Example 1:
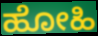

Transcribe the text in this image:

ಹೋಹಿ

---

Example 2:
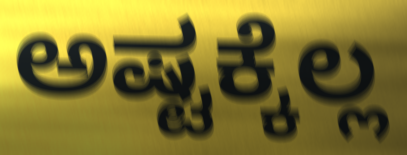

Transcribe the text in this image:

ಅಷ್ಟಕ್ಕೆಲ್ಲ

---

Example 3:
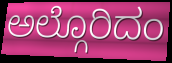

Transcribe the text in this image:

ಅಲ್ಗೊರಿದಂ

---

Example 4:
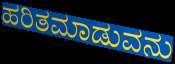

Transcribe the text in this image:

ಹರಿತಮಾಡುವನು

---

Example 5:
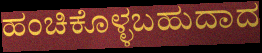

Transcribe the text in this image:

ಹಂಚಿಕೊಳ್ಳಬಹುದಾದ